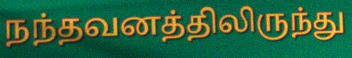
நந்தவனத்திலிருந்து